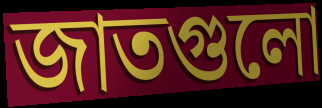
জাতগুলো